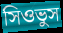
সিওভুস